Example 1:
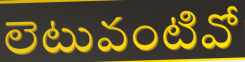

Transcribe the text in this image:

లెటువంటివో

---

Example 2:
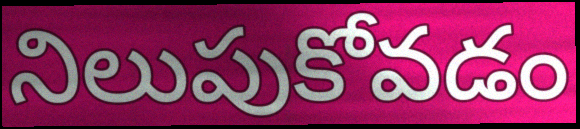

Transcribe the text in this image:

నిలుపుకోవడం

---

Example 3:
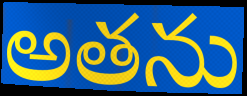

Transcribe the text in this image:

అతను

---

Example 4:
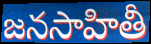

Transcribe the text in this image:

జనసాహితీ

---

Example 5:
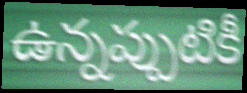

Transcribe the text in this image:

ఉన్నప్పుటికీ